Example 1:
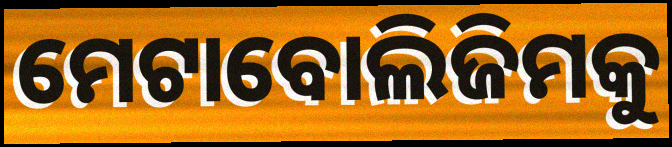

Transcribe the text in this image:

ମେଟାବୋଲିଜିମକୁ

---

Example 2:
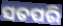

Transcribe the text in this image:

ସତପରି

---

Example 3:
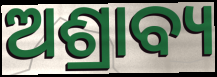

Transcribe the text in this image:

ଅଶ୍ରାବ୍ୟ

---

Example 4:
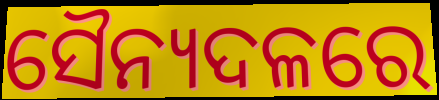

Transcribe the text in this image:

ସୈନ୍ୟଦଳରେ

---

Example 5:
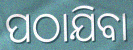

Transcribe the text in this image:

ପଠାଯିବା